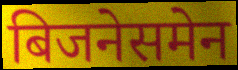
बिजनेसमेन